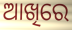
ଆଖିରେ